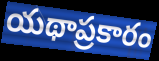
యథాప్రకారం